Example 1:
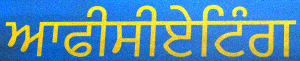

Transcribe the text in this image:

ਆਫੀਸੀਏਟਿੰਗ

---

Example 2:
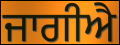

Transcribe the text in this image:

ਜਾਗੀਐ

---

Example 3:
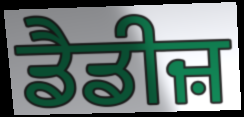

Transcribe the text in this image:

ਡੈਡੀਜ਼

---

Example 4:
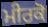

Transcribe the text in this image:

ਮੀਰਕੋ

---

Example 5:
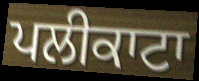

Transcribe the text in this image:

ਪਲੀਕਾਟਾ